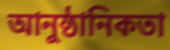
আনুষ্ঠানিকতা